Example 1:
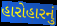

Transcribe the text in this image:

હારોહારનું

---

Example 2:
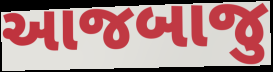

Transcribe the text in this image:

આજબાજુ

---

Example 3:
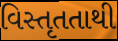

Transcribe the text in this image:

વિસ્તૃતતાથી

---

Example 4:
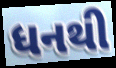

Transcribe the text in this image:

ધનથી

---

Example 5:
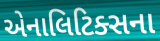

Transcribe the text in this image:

એનાલિટિક્સના